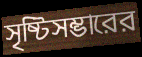
সৃষ্টিসম্ভারের